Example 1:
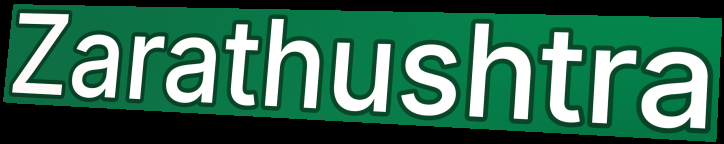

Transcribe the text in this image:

Zarathushtra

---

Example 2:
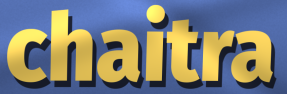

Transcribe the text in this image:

chaitra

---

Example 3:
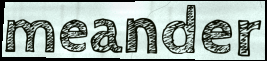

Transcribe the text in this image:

meander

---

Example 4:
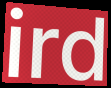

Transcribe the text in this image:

ird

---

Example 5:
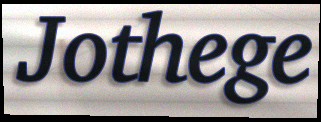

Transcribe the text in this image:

Jothege